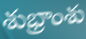
శుభ్రాంశు